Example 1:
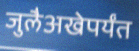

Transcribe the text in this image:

जुलैअखेपर्यंत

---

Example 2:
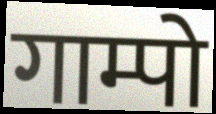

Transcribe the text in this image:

गाम्पो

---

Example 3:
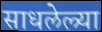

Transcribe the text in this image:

साधलेल्या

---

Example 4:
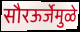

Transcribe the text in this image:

सौरऊर्जेमुळे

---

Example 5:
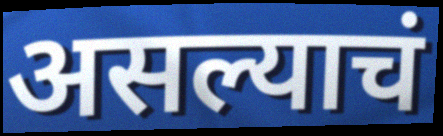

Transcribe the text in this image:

असल्याचं